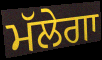
ਮੱਲੇਗਾ